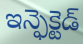
ఇన్ఫెక్టెడ్